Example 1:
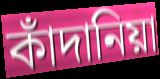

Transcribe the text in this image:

কাঁদানিয়া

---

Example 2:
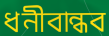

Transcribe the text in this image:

ধনীবান্ধব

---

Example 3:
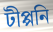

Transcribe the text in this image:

টীপ্পনি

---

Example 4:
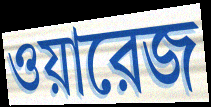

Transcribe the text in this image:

ওয়ারেজ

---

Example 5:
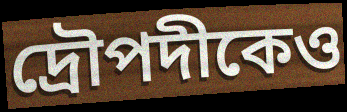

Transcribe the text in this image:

দ্রৌপদীকেও